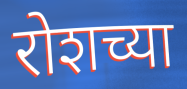
रोशच्या